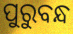
ପୁରୁବନ୍ଧ